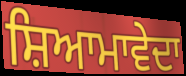
ਸ਼ਿਆਮਾਵੇਦਾ